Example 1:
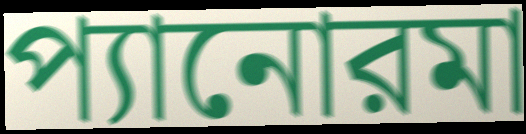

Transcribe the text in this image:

প্যানোরমা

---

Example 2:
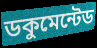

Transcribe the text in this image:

ডকুমেন্টেড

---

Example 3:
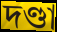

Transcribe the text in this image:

দণ্ডা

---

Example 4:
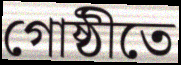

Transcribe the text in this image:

গোষ্ঠীতে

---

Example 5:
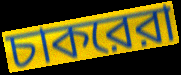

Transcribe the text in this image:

চাকরেরা